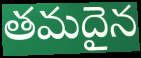
తమదైన